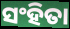
ସଂହିତା